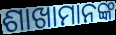
ଶାଖାମାନଙ୍କ